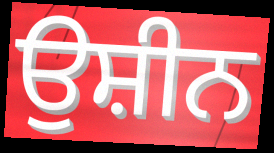
ਉਸ਼ੀਨ